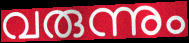
വരുന്നും